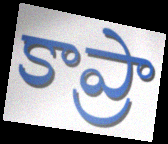
కాప్రా